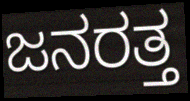
ಜನರತ್ತ